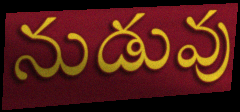
నుడువు